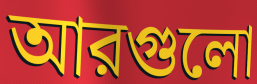
আরগুলো